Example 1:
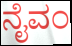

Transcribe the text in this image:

ನೈವಂ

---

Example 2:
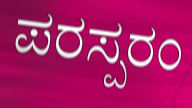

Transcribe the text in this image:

ಪರಸ್ಪರಂ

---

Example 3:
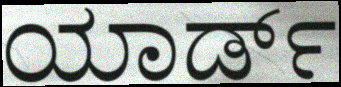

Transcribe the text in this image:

ಯಾರ್ಡ್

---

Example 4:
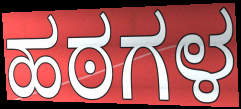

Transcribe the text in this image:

ಹಠಗಳ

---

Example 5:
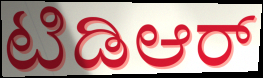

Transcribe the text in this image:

ಟಿಡಿಆರ್